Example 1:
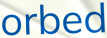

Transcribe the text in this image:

orbed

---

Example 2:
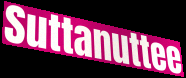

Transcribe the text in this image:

Suttanuttee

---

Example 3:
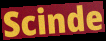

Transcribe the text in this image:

Scinde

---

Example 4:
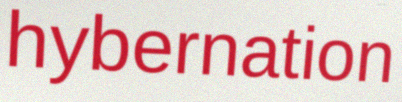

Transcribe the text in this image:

hybernation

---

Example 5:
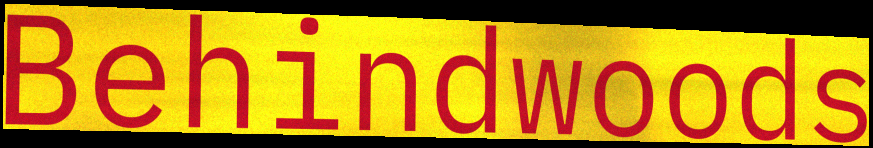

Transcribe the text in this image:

Behindwoods